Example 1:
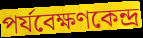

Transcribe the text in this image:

পর্যবেক্ষণকেন্দ্র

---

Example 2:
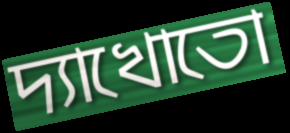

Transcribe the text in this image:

দ্যাখোতো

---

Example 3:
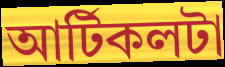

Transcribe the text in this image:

আর্টিকলটা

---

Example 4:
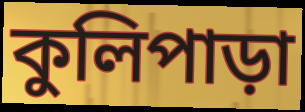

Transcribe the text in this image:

কুলিপাড়া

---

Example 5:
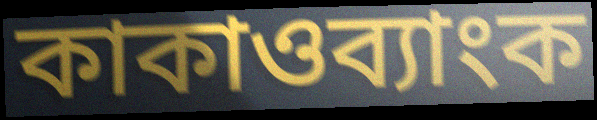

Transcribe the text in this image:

কাকাওব্যাংক